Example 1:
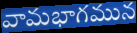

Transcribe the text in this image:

వామభాగమున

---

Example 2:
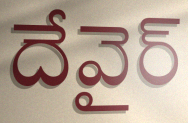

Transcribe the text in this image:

దేవైర్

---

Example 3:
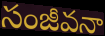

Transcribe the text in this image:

సంజీవనా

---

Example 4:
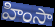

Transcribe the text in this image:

హింసా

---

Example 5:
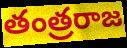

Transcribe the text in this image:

తంత్రరాజ